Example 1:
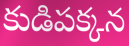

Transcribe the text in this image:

కుడిపక్కన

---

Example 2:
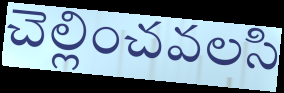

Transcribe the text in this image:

చెల్లించవలసి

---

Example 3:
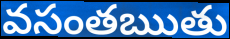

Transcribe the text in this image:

వసంతఋతు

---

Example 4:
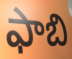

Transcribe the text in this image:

ఫాబి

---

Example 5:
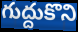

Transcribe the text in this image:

గుద్దుకొని